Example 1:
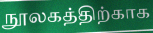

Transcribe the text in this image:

நூலகத்திற்காக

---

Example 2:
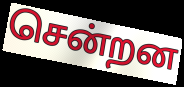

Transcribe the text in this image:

சென்றன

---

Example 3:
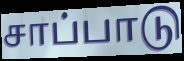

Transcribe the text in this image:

சாப்பாடு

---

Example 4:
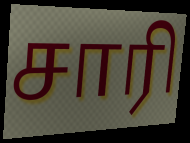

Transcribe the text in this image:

சாரி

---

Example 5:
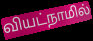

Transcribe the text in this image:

வியட்நாமில்